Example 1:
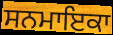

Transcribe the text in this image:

ਸਨਮਾਇਕਾ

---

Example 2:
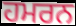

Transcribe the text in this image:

ਹਮਰਨ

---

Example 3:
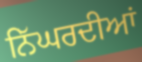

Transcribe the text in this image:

ਨਿੱਘਰਦੀਆਂ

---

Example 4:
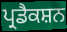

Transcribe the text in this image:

ਪ੍ਰਡੈਕਸ਼ਨ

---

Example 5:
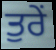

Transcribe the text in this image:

ਤੁਰੇਂ